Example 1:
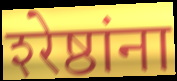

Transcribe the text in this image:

श्रेष्ठांना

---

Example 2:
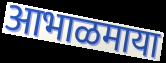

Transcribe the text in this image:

आभाळमाया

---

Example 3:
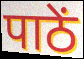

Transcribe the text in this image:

पाठें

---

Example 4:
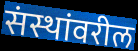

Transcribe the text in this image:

संस्थांवरील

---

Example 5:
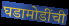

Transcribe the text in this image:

घडामोडींची